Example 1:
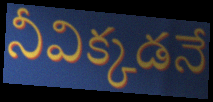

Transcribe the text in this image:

నీవిక్కడనే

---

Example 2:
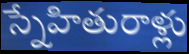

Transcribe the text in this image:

స్నేహితురాళ్లు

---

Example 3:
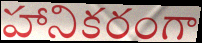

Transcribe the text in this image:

హానికరంగా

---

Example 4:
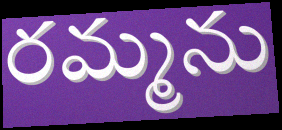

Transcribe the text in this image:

రమ్మను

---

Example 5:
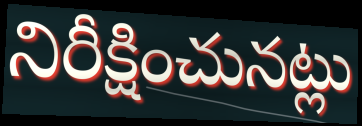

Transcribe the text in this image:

నిరీక్షించునట్లు